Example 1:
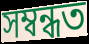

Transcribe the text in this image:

সম্বন্ধত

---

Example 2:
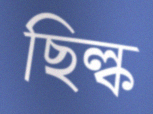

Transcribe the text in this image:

ছিল্ক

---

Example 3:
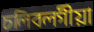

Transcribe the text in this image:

চলিবলগীয়া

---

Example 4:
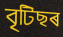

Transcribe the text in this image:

বৃটিছৰ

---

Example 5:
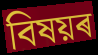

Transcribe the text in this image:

বিষয়ৰ